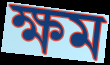
ক্ষম